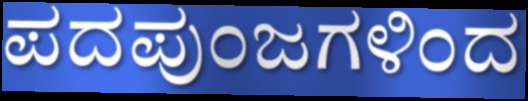
ಪದಪುಂಜಗಳಿಂದ